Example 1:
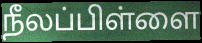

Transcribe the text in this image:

நீலப்பிள்ளை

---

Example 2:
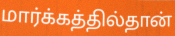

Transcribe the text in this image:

மார்க்கத்தில்தான்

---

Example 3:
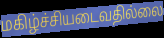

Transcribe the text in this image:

மகிழ்ச்சியடைவதில்லை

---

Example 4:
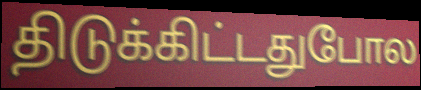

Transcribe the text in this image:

திடுக்கிட்டதுபோல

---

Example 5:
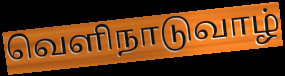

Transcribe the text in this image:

வெளிநாடுவாழ்